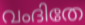
വംദിതേ